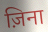
ज़िना